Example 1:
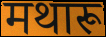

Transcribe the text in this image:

मथारू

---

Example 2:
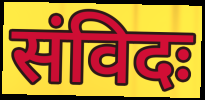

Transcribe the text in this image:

संविदः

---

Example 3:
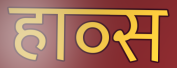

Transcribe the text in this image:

हाव्स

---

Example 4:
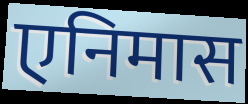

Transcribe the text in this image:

एनिमास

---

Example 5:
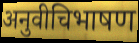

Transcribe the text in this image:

अनुवीचिभाषण